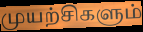
முயற்சிகளும்